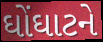
ઘોંઘાટને